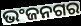
ଭଂଜନଗର